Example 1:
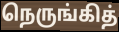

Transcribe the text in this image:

நெருங்கித்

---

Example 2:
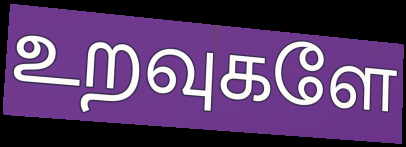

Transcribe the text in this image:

உறவுகளே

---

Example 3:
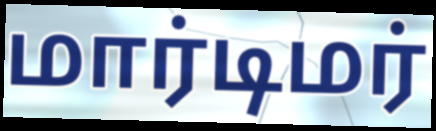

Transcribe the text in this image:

மார்டிமர்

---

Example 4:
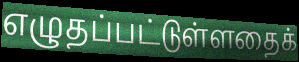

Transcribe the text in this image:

எழுதப்பட்டுள்ளதைக்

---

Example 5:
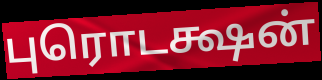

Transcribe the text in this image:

புரொடக்ஷன்